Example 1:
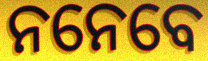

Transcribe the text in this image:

ନନେବେ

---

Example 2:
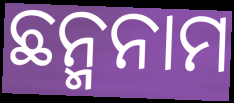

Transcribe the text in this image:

ଛନ୍ମନାମ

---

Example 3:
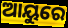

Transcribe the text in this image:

ଆୟୁରେ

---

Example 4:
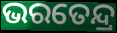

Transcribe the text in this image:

ଭରତେନ୍ଦ୍ର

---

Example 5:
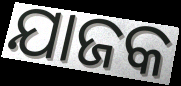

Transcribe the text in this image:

ଯାଜକ